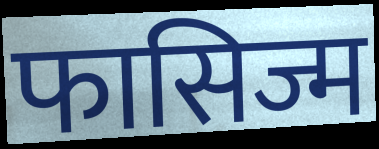
फासिज्म